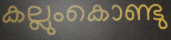
കല്ലുംകൊണ്ടു